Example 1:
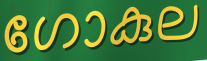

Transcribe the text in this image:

ഗോകുല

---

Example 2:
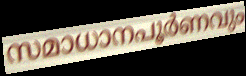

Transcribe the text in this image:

സമാധാനപൂർണവും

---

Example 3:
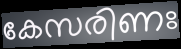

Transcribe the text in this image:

കേസരിണഃ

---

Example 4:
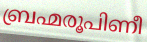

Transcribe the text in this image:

ബ്രഹ്മരൂപിണീ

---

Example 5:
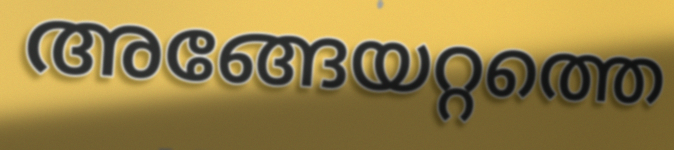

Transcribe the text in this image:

അങ്ങേയറ്റത്തെ